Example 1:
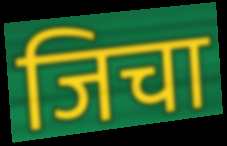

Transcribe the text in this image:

जिचा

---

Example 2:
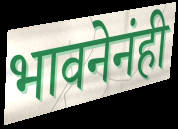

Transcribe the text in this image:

भावनेनंही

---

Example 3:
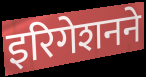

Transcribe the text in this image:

इरिगेशनने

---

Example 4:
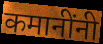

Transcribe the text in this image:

कमानींनी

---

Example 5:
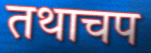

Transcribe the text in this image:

तथाचप